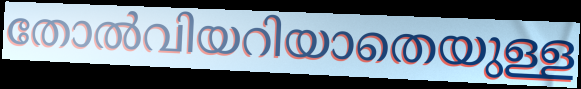
തോൽവിയറിയാതെയുള്ള